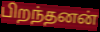
பிறந்தனன்